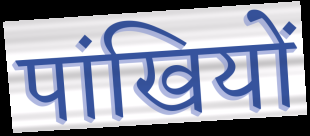
पांखियों